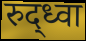
रुद्ध्वा